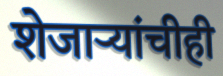
शेजाऱ्यांचीही